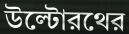
উল্টোরথের